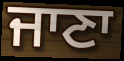
ਜਾਣਾ